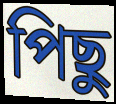
পিছু